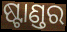
ଷ୍ଟାଣ୍ଡର